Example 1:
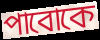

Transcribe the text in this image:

পাবোকে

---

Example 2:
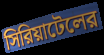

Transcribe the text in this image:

সিরিয়াটেলের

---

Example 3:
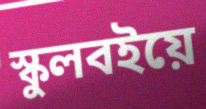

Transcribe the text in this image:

স্কুলবইয়ে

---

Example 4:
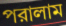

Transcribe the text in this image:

পরালাম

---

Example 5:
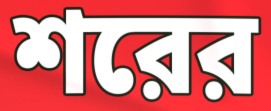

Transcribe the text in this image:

শরের